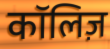
कॉलिज़